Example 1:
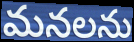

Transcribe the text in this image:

మనలను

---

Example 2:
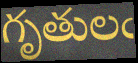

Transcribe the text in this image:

గృతులఁ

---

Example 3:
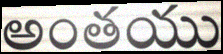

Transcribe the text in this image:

అంతయు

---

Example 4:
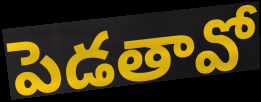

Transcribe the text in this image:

పెడతావో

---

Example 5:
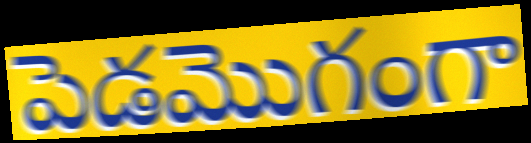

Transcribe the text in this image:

పెడమొగంగా